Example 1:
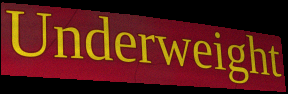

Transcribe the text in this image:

Underweight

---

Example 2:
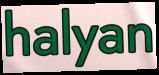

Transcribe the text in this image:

halyan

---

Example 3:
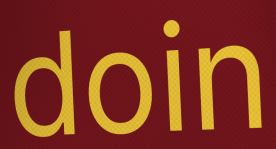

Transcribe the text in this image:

doin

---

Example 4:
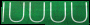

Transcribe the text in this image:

IUUUU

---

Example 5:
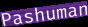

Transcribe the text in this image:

Pashuman